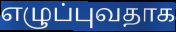
எழுப்புவதாக